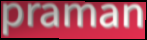
praman